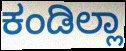
ಕಂಡಿಲ್ಲಾ